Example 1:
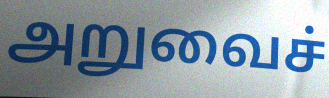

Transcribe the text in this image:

அறுவைச்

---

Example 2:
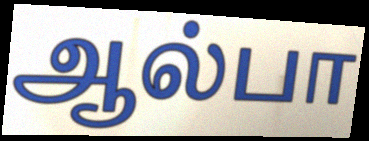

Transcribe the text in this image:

ஆல்பா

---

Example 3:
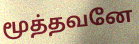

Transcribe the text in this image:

மூத்தவனே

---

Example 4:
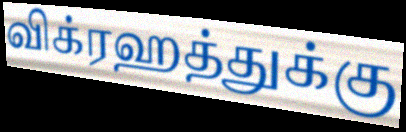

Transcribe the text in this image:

விக்ரஹத்துக்கு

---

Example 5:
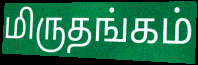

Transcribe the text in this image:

மிருதங்கம்